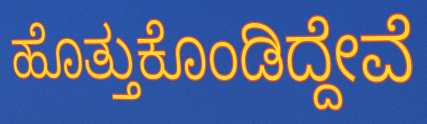
ಹೊತ್ತುಕೊಂಡಿದ್ದೇವೆ